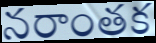
నరాంతక